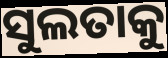
ସୁଲତାକୁ